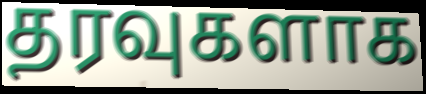
தரவுகளாக